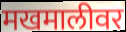
मखमालीवर